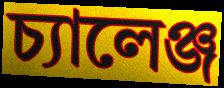
চ্যালেঞ্জ